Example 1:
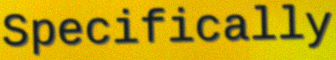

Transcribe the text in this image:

Specifically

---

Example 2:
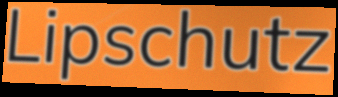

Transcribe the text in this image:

Lipschutz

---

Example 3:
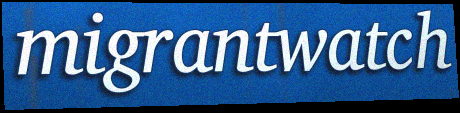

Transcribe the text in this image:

migrantwatch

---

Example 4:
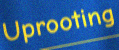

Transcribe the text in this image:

Uprooting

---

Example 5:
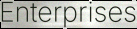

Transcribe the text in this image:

Enterprises